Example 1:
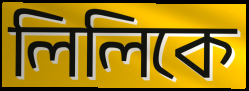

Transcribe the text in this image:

লিলিকে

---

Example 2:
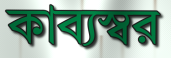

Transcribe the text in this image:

কাব্যস্বর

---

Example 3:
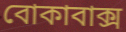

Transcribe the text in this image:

বোকাবাক্স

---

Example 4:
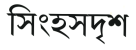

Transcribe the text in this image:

সিংহসদৃশ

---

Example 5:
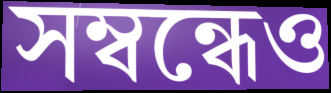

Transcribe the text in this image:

সম্বন্ধেও